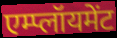
एम्प्लॉयमेंट